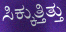
ಸಿಕ್ಕುತ್ತಿತ್ತು